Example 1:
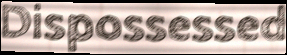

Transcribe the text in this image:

Dispossessed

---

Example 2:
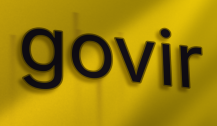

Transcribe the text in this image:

govir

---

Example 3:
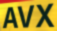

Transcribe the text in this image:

AVX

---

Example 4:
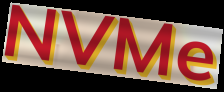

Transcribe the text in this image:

NVMe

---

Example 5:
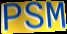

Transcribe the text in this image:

PSM